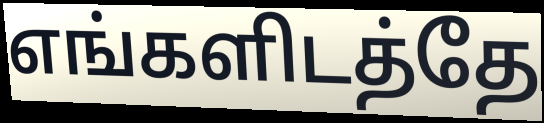
எங்களிடத்தே